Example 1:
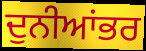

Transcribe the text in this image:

ਦੁਨੀਆਂਭਰ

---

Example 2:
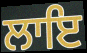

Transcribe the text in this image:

ਲਾਇ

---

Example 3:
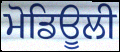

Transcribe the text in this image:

ਮੋਡਿਊਲੀ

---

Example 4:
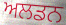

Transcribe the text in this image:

ਅਲਡਨ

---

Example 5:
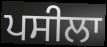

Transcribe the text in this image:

ਪਸੀਲਾ